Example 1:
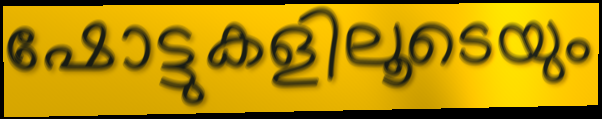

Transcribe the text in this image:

ഷോട്ടുകളിലൂടെയും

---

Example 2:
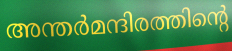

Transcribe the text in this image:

അന്തർമന്ദിരത്തിന്റെ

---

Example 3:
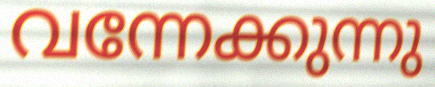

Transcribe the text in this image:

വന്നേക്കുന്നു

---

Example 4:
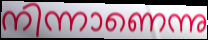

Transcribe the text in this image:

നിന്നാണെന്നു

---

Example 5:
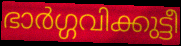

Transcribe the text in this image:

ഭാർഗ്ഗവിക്കുട്ടീ